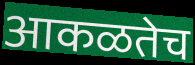
आकळतेच